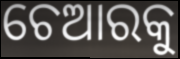
ଚେଆରକୁ